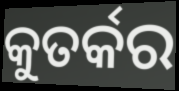
କୁତର୍କର